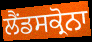
ਲੈਂਡਸਕ੍ਰੋਨਾ